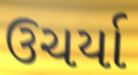
ઉચર્યા